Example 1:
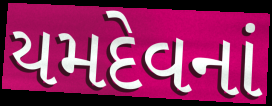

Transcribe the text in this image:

યમદેવનાં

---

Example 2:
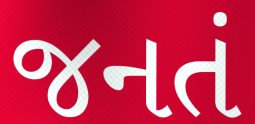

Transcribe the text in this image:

જનતં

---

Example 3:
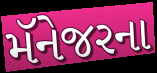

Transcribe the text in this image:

મૅનેજરના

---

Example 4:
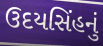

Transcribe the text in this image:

ઉદયસિંહનું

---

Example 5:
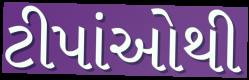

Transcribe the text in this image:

ટીપાંઓથી